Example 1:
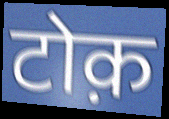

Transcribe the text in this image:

टोक़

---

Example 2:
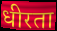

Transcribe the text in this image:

धीरता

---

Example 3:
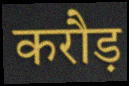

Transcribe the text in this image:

करौड़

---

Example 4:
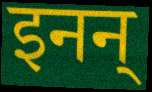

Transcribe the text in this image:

इनन्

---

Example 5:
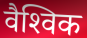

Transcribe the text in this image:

वैश्‍विक